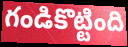
గండికొట్టింది